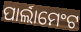
ପାର୍ଲାମେଂଟ